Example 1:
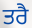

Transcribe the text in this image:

ਤਰੈ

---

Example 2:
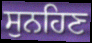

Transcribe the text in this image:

ਸੁਨਹਿਣ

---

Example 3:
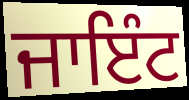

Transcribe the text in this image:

ਜਾਇੰਟ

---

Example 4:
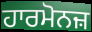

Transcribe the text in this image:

ਹਾਰਮੋਨਜ਼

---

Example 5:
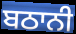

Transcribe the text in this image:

ਬਠਾਨੀ